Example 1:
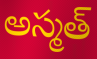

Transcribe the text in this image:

అస్మత్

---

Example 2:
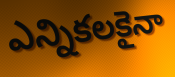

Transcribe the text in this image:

ఎన్నికలకైనా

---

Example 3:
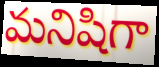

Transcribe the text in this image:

మనిషిగా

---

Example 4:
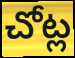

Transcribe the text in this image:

చోట్ల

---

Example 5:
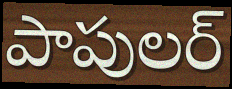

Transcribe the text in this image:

పాపులర్